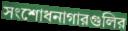
সংশোধনাগারগুলির